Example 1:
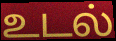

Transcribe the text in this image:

உடல்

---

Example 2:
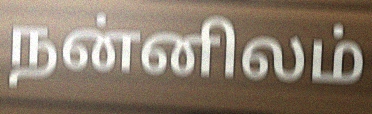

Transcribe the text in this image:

நன்னிலம்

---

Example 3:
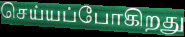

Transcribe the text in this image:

செய்யப்போகிறது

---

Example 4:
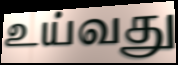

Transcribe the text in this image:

உய்வது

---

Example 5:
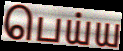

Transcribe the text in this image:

பெய்ய